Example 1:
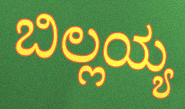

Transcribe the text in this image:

ಬಿಲ್ಲಯ್ಯ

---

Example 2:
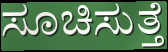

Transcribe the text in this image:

ಸೂಚಿಸುತ್ತೆ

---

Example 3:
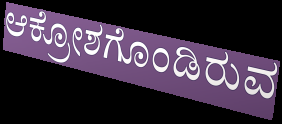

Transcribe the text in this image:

ಆಕ್ರೋಶಗೊಂಡಿರುವ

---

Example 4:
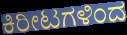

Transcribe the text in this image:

ಕಿರೀಟಗಳಿಂದ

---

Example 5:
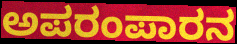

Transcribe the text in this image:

ಅಪರಂಪಾರನ